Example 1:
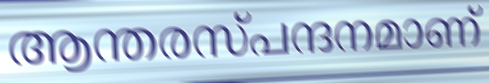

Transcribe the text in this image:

ആന്തരസ്പന്ദനമാണ്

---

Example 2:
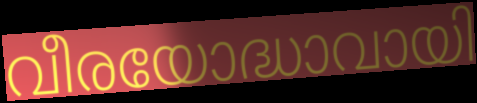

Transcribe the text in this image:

വീരയോദ്ധാവായി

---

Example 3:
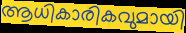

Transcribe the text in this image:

ആധികാരികവുമായി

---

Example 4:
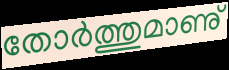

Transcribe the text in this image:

തോർത്തുമാണു്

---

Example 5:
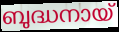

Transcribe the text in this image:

ബുദ്ധനായ്